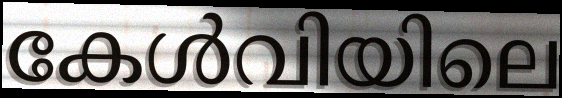
കേൾവിയിലെ